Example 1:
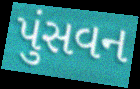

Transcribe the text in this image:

પુંસવન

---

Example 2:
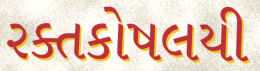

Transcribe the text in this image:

રક્તકોષલયી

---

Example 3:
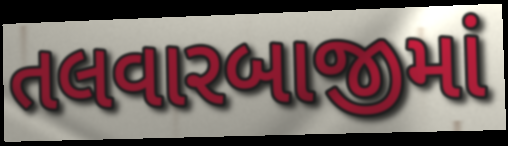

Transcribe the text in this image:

તલવારબાજીમાં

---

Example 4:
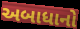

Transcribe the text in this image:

અબાધાનો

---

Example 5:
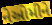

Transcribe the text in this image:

નેઓમીને